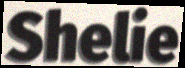
Shelie